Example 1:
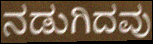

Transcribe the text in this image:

ನಡುಗಿದವು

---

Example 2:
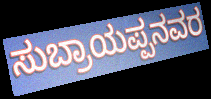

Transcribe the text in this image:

ಸುಬ್ರಾಯಪ್ಪನವರ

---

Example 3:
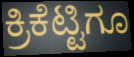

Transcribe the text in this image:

ಕ್ರಿಕೆಟ್ಟಿಗೂ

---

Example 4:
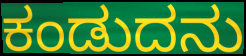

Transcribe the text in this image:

ಕಂಡುದನು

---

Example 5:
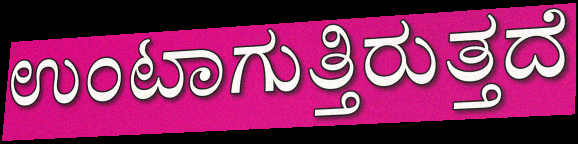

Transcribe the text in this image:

ಉಂಟಾಗುತ್ತಿರುತ್ತದೆ